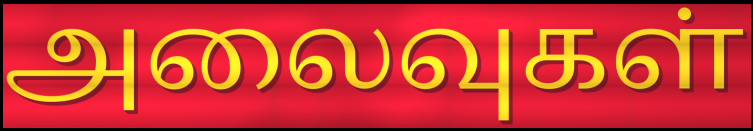
அலைவுகள்